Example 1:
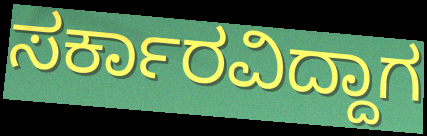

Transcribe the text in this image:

ಸರ್ಕಾರವಿದ್ದಾಗ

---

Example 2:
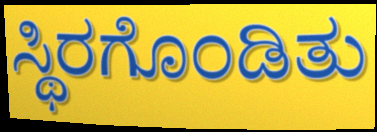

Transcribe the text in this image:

ಸ್ಥಿರಗೊಂಡಿತು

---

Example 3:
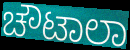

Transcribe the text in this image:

ಚೌಟಾಲಾ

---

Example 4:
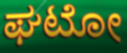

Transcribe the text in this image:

ಘಟೋ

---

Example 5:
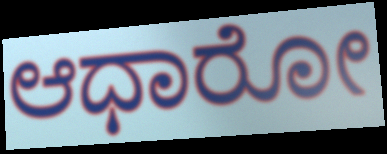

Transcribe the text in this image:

ಆಧಾರೋ